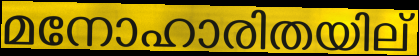
മനോഹാരിതയില്